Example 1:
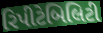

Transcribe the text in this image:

રિપીટેબિલિટી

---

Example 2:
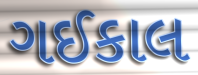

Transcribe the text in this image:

ગઈકાલ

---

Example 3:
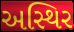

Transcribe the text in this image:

અસ્થિર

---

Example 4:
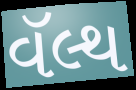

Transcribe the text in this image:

વૅલ્થ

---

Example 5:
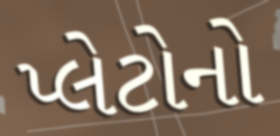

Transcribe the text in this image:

પ્લેટોનો